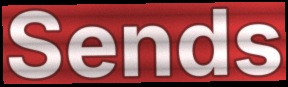
Sends